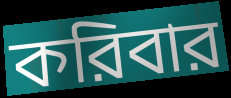
করিবার